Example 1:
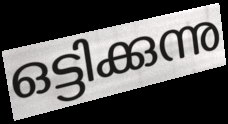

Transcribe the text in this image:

ഒട്ടിക്കുന്നു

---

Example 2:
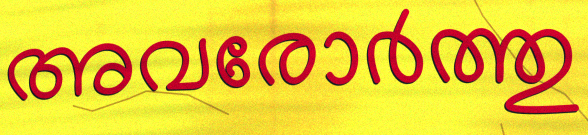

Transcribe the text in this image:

അവരോർത്തു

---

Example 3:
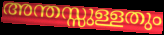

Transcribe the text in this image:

അന്തസ്സുള്ളതും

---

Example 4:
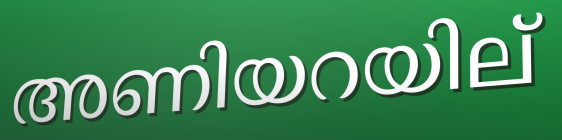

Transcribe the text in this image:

അണിയറയില്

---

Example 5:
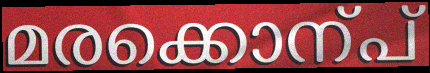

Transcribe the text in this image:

മരക്കൊന്പ്